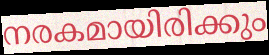
നരകമായിരിക്കും